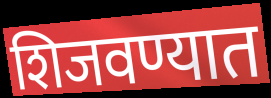
शिजवण्यात